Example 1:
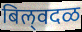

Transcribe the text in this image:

बिल्वदळ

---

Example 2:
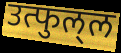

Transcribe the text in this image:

उत्फुल्ल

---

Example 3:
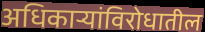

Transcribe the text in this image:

अधिकाऱ्यांविरोधातील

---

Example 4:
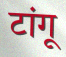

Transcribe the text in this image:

टांगू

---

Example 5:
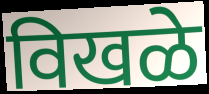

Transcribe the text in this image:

विखळे